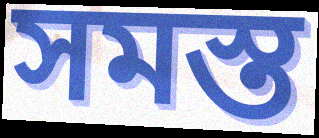
সমস্ত